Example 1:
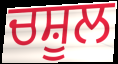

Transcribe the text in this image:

ਚਸ਼ੂਲ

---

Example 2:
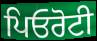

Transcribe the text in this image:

ਪਿਓਰੋਟੀ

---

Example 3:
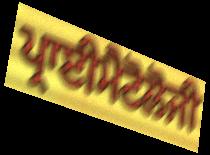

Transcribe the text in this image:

ਪ੍ਰਾਈਮੈਟੋਲੋਜੀ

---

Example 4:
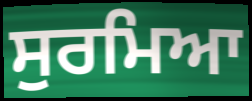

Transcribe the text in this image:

ਸੁਰਮਿਆ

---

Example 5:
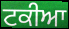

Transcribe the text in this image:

ਟਕੀਆ